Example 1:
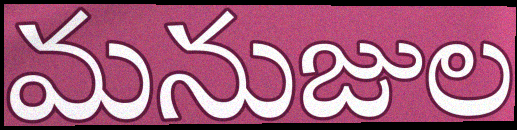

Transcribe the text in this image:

మనుజుల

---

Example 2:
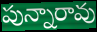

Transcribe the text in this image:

పున్నారావు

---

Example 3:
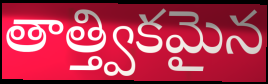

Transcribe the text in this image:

తాత్త్వికమైన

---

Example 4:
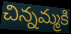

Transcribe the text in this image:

చిన్నమ్మకి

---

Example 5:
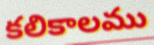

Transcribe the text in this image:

కలికాలము